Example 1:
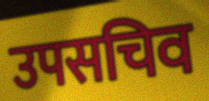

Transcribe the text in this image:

उपसचिव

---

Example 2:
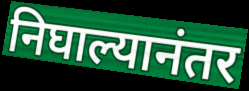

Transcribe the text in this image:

निघाल्यानंतर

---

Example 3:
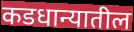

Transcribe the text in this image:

कडधान्यातील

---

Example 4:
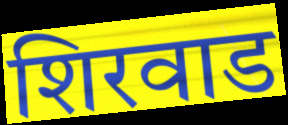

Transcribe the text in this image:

शिरवाड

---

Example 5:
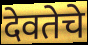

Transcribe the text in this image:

देवतेचे